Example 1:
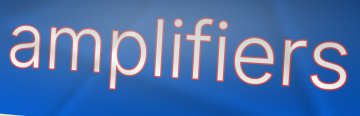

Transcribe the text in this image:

amplifiers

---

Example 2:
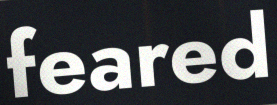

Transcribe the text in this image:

feared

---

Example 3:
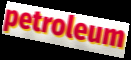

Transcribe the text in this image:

petroleum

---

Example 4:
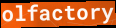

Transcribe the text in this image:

olfactory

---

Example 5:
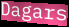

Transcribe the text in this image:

Dagars